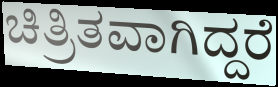
ಚಿತ್ರಿತವಾಗಿದ್ದರೆ